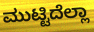
ಮುಟ್ಟಿದೆಲ್ಲಾ